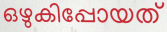
ഒഴുകിപ്പോയത്